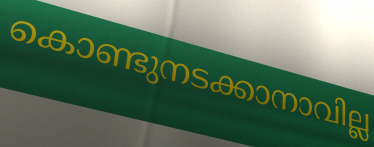
കൊണ്ടുനടക്കാനാവില്ല